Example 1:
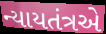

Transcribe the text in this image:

ન્યાયતંત્રએ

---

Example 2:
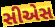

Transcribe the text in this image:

સીએસ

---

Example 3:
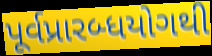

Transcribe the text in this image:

પૂર્વપ્રારબ્ધયોગથી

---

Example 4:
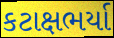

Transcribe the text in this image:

કટાક્ષભર્યા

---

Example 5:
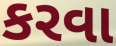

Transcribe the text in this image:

કરવા